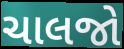
ચાલજો